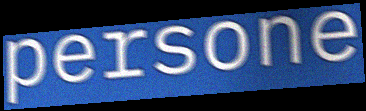
persone